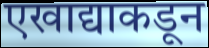
एखाद्याकडून